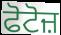
ਫੋਟੋਜ਼